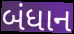
બંધાન